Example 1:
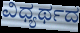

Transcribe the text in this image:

ವಿಧ್ಯರ್ಥದ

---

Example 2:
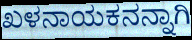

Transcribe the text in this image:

ಖಳನಾಯಕನನ್ನಾಗಿ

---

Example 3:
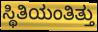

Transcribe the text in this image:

ಸ್ಥಿತಿಯಂತಿತ್ತು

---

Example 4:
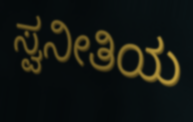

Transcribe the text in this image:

ಸ್ವನೀತಿಯ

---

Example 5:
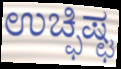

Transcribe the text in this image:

ಉಚ್ಫಿಷ್ಟ